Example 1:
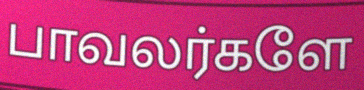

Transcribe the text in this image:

பாவலர்களே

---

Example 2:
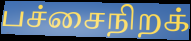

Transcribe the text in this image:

பச்சைநிறக்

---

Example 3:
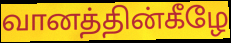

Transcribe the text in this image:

வானத்தின்கீழே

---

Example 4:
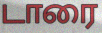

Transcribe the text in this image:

டாரை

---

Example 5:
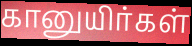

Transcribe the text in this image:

கானுயிர்கள்